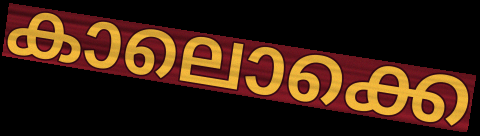
കാലൊക്കെ